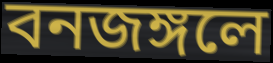
বনজঙ্গলে